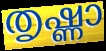
തൃഷ്ണാ